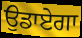
ਉਡਾਏਗਾ